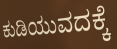
ಕುಡಿಯುವದಕ್ಕೆ